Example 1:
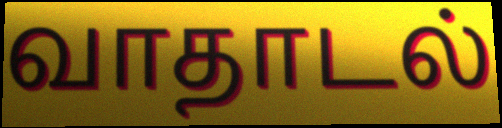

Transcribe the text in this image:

வாதாடல்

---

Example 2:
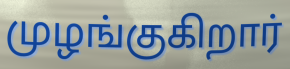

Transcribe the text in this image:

முழங்குகிறார்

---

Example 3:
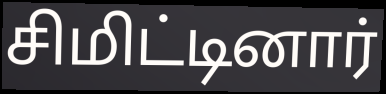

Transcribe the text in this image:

சிமிட்டினார்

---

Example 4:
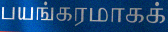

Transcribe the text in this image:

பயங்கரமாகக்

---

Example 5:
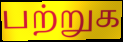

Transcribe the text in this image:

பற்றுக